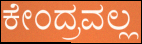
ಕೇಂದ್ರವಲ್ಲ